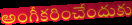
అంగీకరించేందుకు